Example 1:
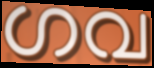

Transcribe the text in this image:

ഗവ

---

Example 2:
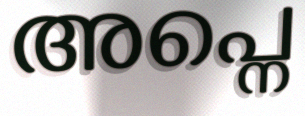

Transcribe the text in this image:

അപ്നെ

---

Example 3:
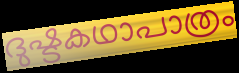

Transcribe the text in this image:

ദുഷ്ടകഥാപാത്രം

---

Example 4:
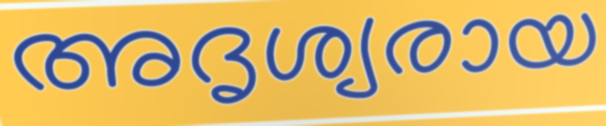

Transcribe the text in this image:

അദൃശ്യരായ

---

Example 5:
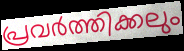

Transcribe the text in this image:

പ്രവർത്തിക്കലും